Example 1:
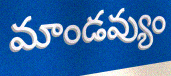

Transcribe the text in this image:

మాండవ్యుం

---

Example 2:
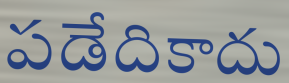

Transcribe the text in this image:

పడేదికాదు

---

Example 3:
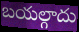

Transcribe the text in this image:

బయల్గాదు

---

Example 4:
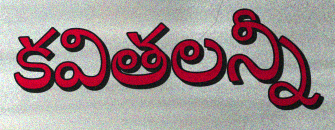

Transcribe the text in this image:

కవితలన్నీ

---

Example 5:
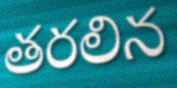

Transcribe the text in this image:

తరలిన